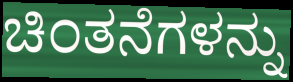
ಚಿಂತನೆಗಳನ್ನು